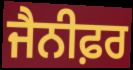
ਜੈਨੀਫ਼ਰ